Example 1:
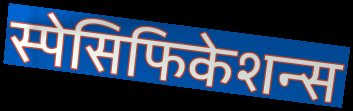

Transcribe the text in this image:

स्पेसिफिकेशन्स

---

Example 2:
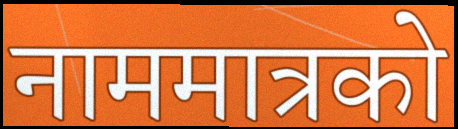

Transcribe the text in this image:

नाममात्रको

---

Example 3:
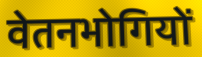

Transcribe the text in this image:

वेतनभोगियों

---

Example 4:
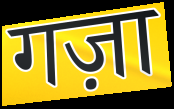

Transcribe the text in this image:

गज़ा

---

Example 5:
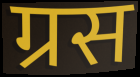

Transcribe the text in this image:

ग्रस